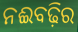
ନଈବଢ଼ିର